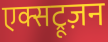
एक्सट्रूज़न